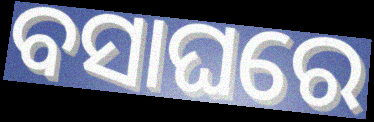
ବସାଘରେ